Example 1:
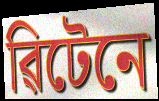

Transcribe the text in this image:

ৱিটেনে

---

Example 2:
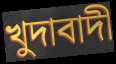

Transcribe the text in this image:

খুদাবাদী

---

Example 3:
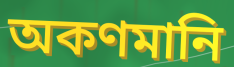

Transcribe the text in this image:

অকণমানি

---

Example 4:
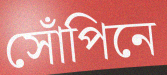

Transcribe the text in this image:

সোঁপিনে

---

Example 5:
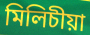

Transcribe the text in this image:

মিলিচীয়া